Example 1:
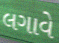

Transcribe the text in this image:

લગાવે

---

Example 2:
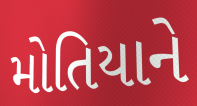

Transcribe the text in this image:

મોતિયાને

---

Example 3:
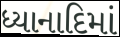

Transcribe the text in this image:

ધ્યાનાદિમાં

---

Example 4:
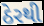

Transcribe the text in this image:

ઠેરથી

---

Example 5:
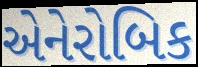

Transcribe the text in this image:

એનેરોબિક